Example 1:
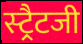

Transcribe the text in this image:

स्‍ट्रैटजी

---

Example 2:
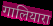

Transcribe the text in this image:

गालियारा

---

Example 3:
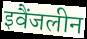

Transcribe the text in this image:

इवैंजलीन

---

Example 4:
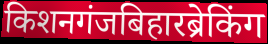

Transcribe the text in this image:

किशनगंजबिहारब्रेकिंग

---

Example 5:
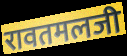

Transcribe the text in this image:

रावतमलजी